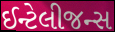
ઈન્ટેલીજન્સ